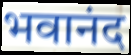
भवानंद